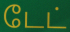
டேட்